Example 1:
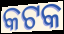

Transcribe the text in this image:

କଟକ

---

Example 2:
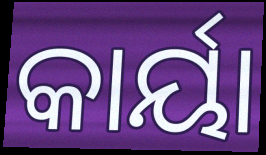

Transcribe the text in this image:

କାର୍ୟା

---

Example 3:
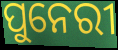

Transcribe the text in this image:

ପୁନେରୀ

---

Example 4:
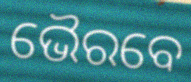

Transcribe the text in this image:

ଭୈରବେ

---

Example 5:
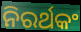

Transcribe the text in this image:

ନିରର୍ଥକଂ